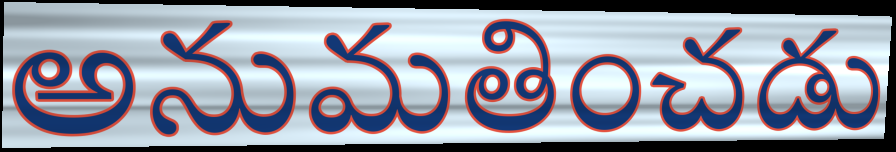
అనుమతించడు